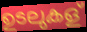
ഉടലുകള്